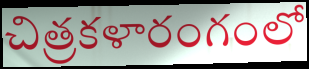
చిత్రకళారంగంలో